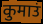
कुमाउं